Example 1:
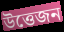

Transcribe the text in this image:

উত্তেজন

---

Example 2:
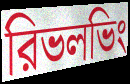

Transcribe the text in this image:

রিভলভিং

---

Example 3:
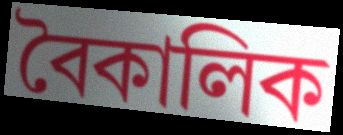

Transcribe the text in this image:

বৈকালিক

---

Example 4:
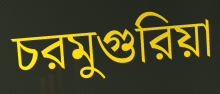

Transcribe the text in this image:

চরমুগুরিয়া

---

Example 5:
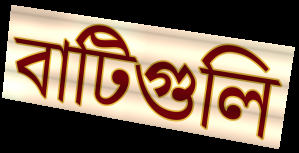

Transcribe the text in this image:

বাটিগুলি